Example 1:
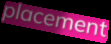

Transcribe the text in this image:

placement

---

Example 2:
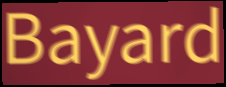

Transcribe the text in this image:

Bayard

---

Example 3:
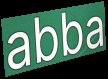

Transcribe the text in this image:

abba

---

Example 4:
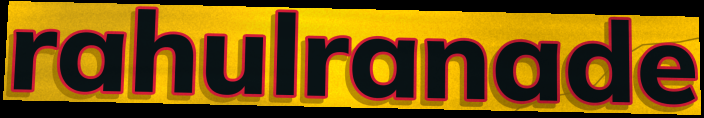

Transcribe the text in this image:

rahulranade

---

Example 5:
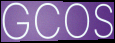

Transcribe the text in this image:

GCOS